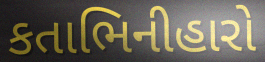
કતાભિનીહારો